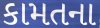
કામતના